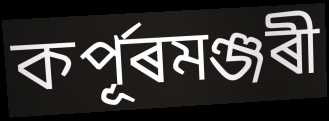
কৰ্পূৰমঞ্জৰী